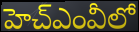
హెచ్ఎంవీలో